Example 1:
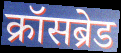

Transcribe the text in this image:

क्रॉसब्रेड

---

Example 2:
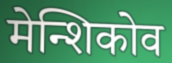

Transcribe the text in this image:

मेन्शिकोव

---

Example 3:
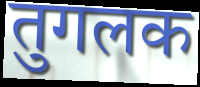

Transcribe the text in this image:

तुगलक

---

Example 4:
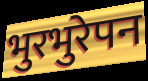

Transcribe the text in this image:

भुरभुरेपन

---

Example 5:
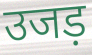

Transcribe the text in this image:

उजड़